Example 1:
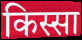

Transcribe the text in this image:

किस्सा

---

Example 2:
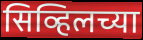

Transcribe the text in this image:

सिव्हिलच्या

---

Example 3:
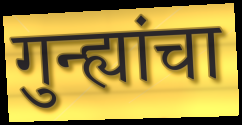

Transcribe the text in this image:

गुन्ह्यांचा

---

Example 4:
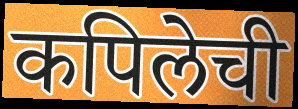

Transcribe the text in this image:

कपिलेची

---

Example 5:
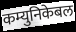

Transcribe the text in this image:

कम्युनिकेबल